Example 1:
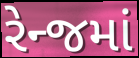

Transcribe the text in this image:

રેન્જમાં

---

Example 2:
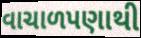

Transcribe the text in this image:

વાચાળપણાથી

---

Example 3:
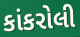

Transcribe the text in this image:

કાંકરોલી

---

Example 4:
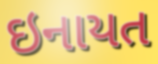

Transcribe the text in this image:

ઇનાયત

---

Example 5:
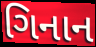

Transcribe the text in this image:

ગિનાન